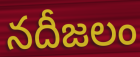
నదీజలం